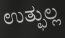
ಉತ್ಫುಲ್ಲ